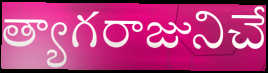
త్యాగరాజునిచే